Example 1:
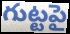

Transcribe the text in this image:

గుట్టపై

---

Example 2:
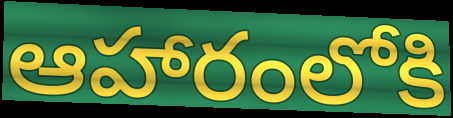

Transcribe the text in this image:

ఆహారంలోకి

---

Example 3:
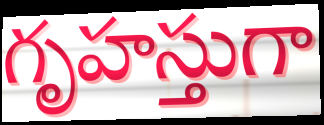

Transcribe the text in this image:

గృహస్తుగా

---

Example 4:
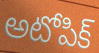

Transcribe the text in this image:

అటోపిక్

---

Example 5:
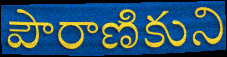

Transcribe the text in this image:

పౌరాణికుని